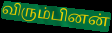
விரும்பினன்